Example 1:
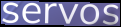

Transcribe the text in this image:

servos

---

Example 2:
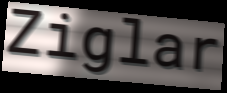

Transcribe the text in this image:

Ziglar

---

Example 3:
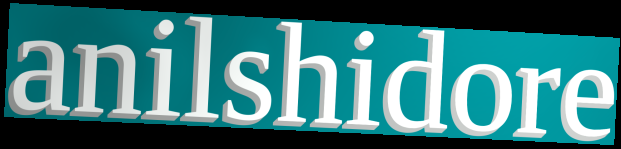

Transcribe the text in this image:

anilshidore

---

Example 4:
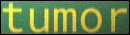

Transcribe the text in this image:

tumor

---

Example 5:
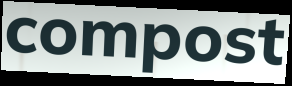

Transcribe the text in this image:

compost